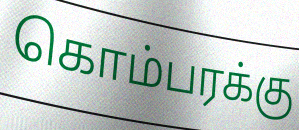
கொம்பரக்கு